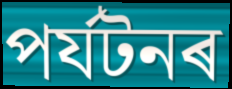
পৰ্যটনৰ